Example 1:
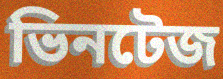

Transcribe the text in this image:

ভিনটেজ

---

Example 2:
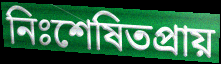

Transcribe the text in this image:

নিঃশেষিতপ্রায়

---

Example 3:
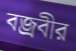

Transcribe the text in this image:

বজ্রবীর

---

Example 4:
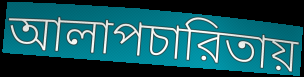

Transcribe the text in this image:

আলাপচারিতায়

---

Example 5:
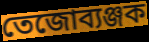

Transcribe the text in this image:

তেজোব্যঞ্জক